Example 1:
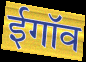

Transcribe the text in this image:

ईगॉव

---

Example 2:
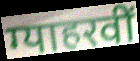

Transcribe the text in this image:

ग्याहरवीं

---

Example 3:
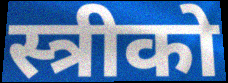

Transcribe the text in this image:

स्त्रीको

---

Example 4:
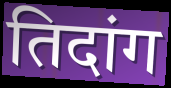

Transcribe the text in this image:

तिदांग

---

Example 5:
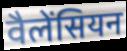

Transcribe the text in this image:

वैलेंसियन